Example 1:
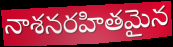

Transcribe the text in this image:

నాశనరహితమైన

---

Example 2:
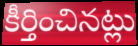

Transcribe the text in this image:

కీర్తించినట్లు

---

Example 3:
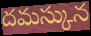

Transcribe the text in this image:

దమస్కున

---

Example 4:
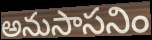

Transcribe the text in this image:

అనుసాసనిం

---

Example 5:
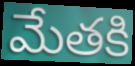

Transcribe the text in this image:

మేతకి